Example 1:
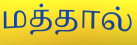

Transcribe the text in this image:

மத்தால்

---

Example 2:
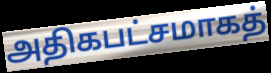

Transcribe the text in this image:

அதிகபட்சமாகத்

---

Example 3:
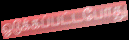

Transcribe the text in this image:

ஒடுக்கப்பட்டபோது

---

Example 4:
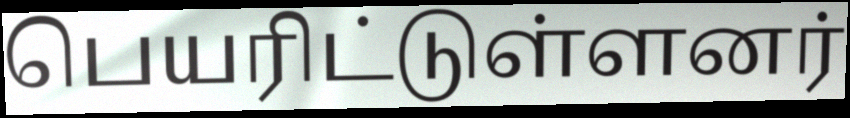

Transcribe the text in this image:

பெயரிட்டுள்ளனர்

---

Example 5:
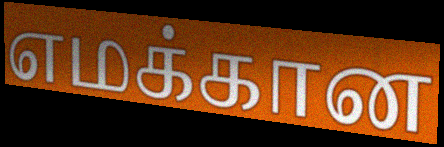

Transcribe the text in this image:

எமக்கான